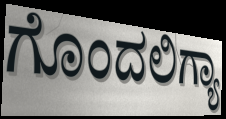
ಗೊಂದಲಿಗ್ಯಾ